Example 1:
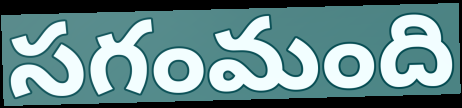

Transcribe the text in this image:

సగంమంది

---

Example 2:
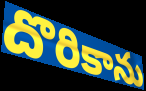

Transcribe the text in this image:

దొరికాను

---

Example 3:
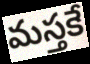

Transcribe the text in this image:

మస్తకే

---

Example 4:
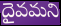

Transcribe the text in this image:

దైవమని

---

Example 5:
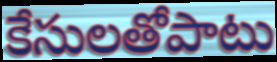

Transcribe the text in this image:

కేసులతోపాటు